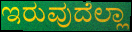
ಇರುವುದೆಲ್ಲಾ